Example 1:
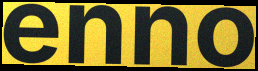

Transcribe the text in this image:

enno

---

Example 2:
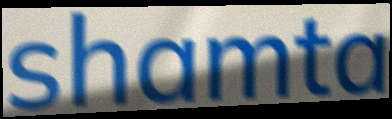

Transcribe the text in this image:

shamta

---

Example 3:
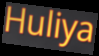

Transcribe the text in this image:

Huliya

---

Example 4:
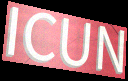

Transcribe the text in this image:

ICUN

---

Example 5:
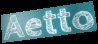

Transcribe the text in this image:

Aetto